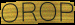
OROP